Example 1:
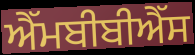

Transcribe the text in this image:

ਐੱਮਬੀਬੀਐੱਸ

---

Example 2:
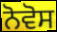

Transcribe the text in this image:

ਨੋਵੋਸ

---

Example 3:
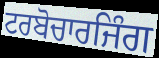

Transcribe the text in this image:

ਟਰਬੋਚਾਰਜਿੰਗ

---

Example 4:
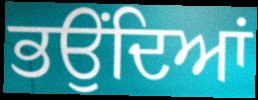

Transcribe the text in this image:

ਭਉਂਦਿਆਂ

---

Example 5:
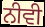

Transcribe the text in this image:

ਨੀਵੀ